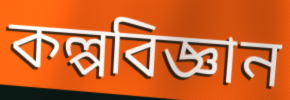
কল্পবিজ্ঞান